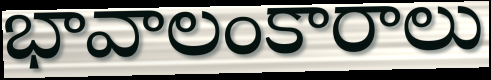
భావాలంకారాలు